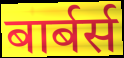
बार्बर्स